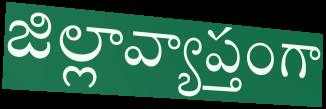
జిల్లావ్యాప్తంగా